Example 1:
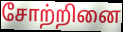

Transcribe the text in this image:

சோற்றினை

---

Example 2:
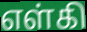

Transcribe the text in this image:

எள்கி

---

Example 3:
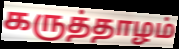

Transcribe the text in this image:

கருத்தாழம்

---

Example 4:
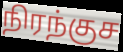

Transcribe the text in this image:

நிரந்குச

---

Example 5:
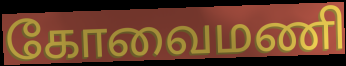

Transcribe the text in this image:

கோவைமணி